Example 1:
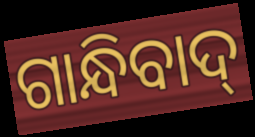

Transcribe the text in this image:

ଗାନ୍ଧିବାଦ୍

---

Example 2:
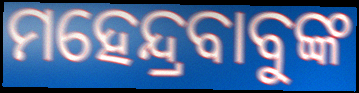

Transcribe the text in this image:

ମହେନ୍ଦ୍ରବାବୁଙ୍କ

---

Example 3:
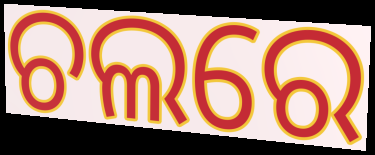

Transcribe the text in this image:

ଚଲରେ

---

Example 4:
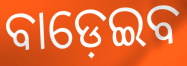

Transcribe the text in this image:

ବାଡ଼େଇବ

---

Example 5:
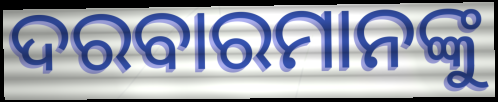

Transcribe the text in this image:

ଦରବାରମାନଙ୍କୁ